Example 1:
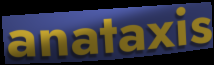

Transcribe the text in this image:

anataxis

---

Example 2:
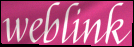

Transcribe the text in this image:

weblink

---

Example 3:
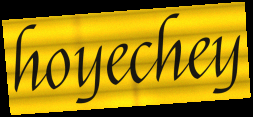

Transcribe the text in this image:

hoyechey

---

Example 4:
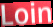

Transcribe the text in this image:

Loin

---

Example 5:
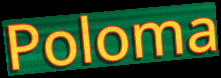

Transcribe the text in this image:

Poloma